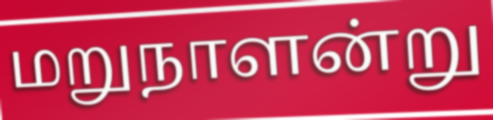
மறுநாளன்று